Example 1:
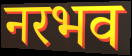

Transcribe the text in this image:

नरभव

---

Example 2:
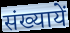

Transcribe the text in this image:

संख्यायें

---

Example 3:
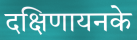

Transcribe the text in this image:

दक्षिणायनके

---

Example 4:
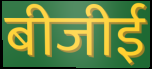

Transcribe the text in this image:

बीजीई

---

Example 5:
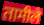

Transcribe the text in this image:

तामीले